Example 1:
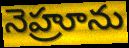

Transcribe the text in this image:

నెహ్రూను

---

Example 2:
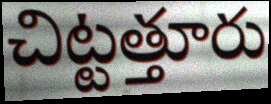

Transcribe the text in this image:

చిట్టత్తూరు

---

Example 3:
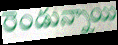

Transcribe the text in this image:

రెండున్నాయి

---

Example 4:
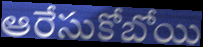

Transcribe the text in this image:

ఆరేసుకోబోయి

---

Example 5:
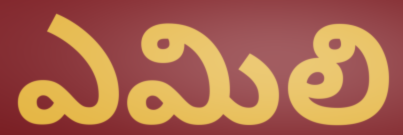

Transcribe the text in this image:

ఎమిలి